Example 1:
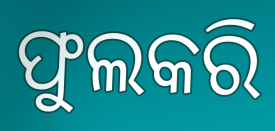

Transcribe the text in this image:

ଫୁଲକରି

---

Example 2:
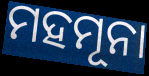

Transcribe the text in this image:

ମହମୂନା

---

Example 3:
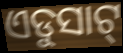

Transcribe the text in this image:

ଏଡୁସାଟ୍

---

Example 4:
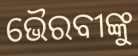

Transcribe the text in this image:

ଭୈରବୀଙ୍କୁ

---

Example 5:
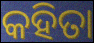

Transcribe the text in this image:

କହିତା